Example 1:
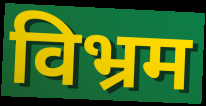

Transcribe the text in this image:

विभ्रम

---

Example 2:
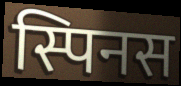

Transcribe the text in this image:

स्पिनस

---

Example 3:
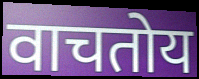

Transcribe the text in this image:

वाचतोय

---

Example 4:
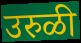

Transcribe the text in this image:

उरुळी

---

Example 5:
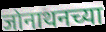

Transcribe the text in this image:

जोनाथनच्या